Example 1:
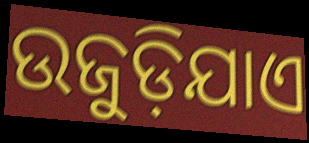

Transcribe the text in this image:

ଉଜୁଡ଼ିଯାଏ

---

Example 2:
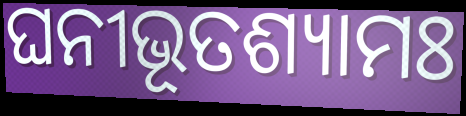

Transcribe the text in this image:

ଘନୀଭୂତଶ୍ୟାମଃ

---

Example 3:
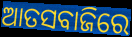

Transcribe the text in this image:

ଆତସବାଜିରେ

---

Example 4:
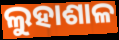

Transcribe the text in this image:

ଲୁହାଶାଳ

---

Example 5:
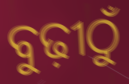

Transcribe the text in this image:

ବୁଢ଼ୀଠୁଁ